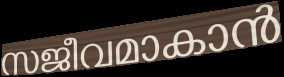
സജീവമാകാൻ